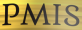
PMIS